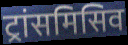
ट्रांसमिसिव